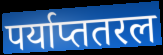
पर्याप्ततरल